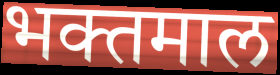
भक्तमाल